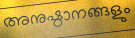
അനുഷ്ഠാനങ്ങളും